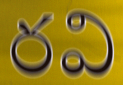
రవి